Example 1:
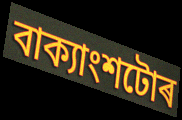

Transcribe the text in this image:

বাক্যাংশটোৰ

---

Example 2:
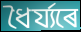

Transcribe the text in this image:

ধৈৰ্য্যৰে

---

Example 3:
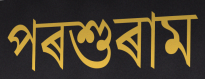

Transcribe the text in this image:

পৰশুৰাম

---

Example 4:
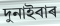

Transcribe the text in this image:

দুনাইবাৰ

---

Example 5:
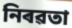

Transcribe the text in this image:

নিৰৱতা